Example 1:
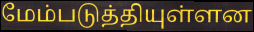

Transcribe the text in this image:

மேம்படுத்தியுள்ளன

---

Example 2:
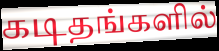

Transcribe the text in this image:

கடிதங்களில்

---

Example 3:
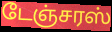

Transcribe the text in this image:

டேஞ்சரஸ்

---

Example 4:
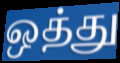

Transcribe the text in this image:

ஒத்து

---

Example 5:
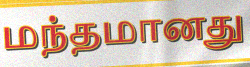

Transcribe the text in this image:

மந்தமானது